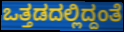
ಒತ್ತಡದಲ್ಲಿದ್ದಂತೆ